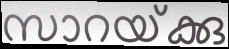
സാറയ്‌ക്കു